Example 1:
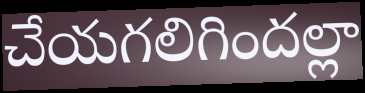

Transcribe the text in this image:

చేయగలిగిందల్లా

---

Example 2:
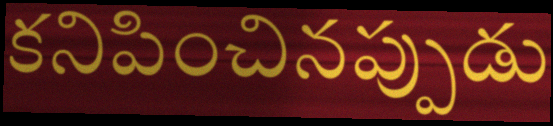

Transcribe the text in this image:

కనిపించినప్పుడు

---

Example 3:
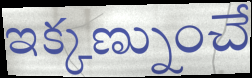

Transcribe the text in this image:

ఇక్కణ్నుంచే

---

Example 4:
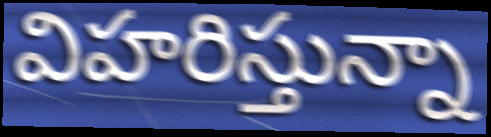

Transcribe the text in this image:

విహరిస్తున్నా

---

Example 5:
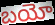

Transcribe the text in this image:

బయో